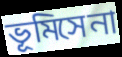
ভূমিসেনা